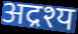
अद्रश्य